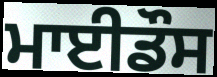
ਮਾਈਡੌਸ